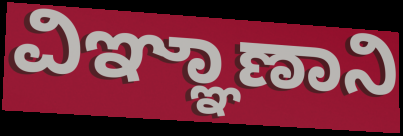
ವಿಞ್ಞಾಣಾನಿ